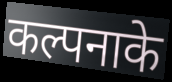
कल्पनाके